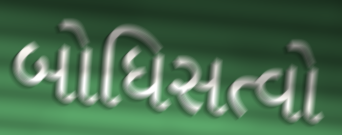
બોધિસત્વો